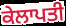
ਕੇਲਾਪਤੀ